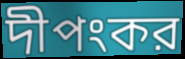
দীপংকর